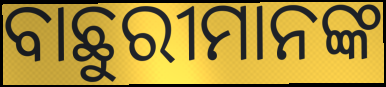
ବାଛୁରୀମାନଙ୍କ